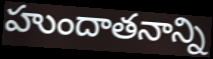
హుందాతనాన్ని